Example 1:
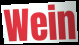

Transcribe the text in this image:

Wein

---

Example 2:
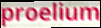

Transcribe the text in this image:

proelium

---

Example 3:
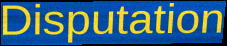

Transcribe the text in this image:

Disputation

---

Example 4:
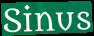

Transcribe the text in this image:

Sinus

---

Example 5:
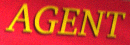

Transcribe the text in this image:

AGENT